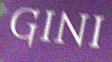
GINI